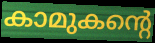
കാമുകന്റെ